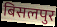
बिसलपुर